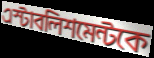
এস্টাবলিশমেন্টকে